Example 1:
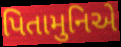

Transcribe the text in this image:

પિતામુનિએ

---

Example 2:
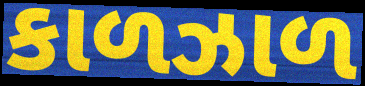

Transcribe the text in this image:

કાળઝાળ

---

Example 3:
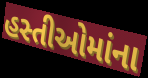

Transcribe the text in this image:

હસ્તીઓમાંના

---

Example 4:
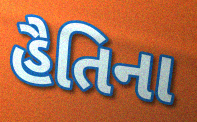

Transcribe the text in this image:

હૈતિના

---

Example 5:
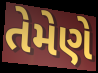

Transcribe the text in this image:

તેમેણે